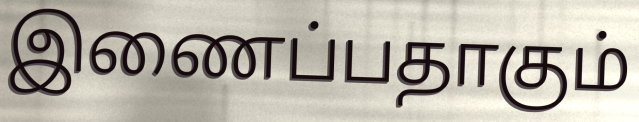
இணைப்பதாகும்